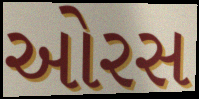
ઓરસ